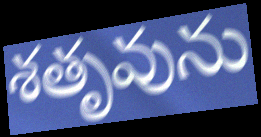
శతృవును